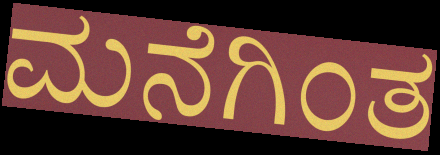
ಮನೆಗಿಂತ